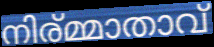
നിര്മ്മാതാവ്